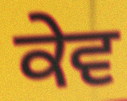
ਕੇਵ